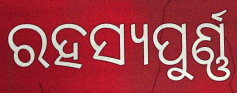
ରହସ୍ୟପୁର୍ଣ୍ଣ